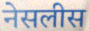
नेसलीस